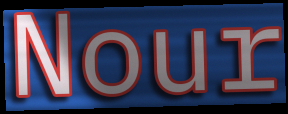
Nour